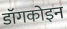
डॉगकोइन